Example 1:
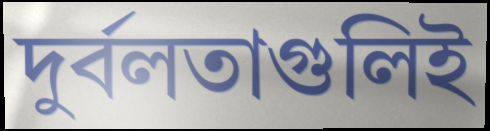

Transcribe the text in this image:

দুর্বলতাগুলিই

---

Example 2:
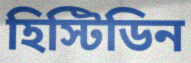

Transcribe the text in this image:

হিস্টিডিন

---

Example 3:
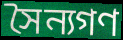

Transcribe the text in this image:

সৈন্যগণ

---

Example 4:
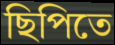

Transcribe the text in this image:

ছিপিতে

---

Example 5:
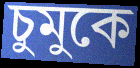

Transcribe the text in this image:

চুমুকে